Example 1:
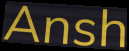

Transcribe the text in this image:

Ansh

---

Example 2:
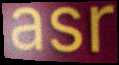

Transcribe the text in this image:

asr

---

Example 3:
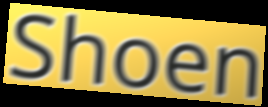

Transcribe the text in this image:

Shoen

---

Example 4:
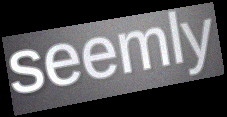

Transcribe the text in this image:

seemly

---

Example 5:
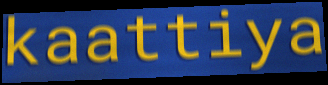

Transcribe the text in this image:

kaattiya